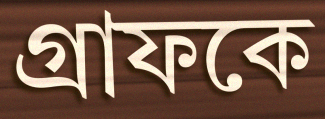
গ্রাফকে